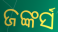
ଜଙ୍କର୍ସ